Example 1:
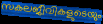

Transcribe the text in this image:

സകലജീവികളുടെയും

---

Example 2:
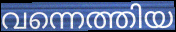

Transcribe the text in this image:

വന്നെത്തിയ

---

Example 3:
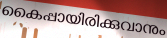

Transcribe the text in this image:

കൈപ്പായിരിക്കുവാനും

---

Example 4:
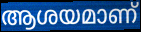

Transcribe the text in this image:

ആശയമാണ്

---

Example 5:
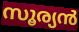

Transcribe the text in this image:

സൂര്യൻ